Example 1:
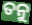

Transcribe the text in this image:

ତନୁ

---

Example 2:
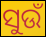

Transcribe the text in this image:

ସୁଉଁ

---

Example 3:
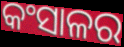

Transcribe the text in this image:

କଂସାଳର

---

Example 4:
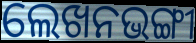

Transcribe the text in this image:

ଲେଖନଭଙ୍ଗୀ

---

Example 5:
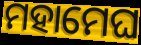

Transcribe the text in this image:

ମହାମେଘ